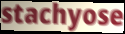
stachyose